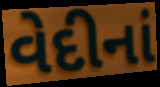
વેદીનાં